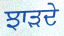
ਝਾੜਦੇ